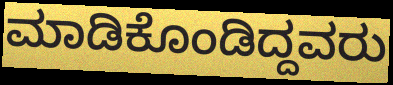
ಮಾಡಿಕೊಂಡಿದ್ದವರು